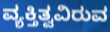
ವ್ಯಕ್ತಿತ್ವವಿರುವ